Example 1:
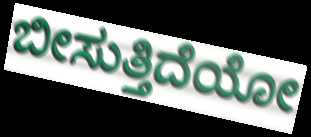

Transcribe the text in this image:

ಬೀಸುತ್ತಿದೆಯೋ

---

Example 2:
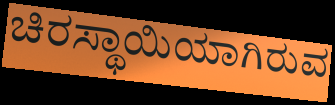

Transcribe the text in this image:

ಚಿರಸ್ಥಾಯಿಯಾಗಿರುವ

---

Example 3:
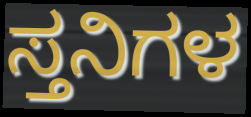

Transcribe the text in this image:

ಸ್ತನಿಗಳ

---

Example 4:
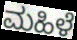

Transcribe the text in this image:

ಮಹಿಳೆ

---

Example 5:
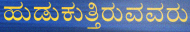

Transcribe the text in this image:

ಹುಡುಕುತ್ತಿರುವವರು